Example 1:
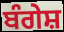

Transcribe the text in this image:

ਬੰਗੇਸ਼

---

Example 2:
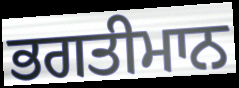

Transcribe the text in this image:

ਭਗਤੀਮਾਨ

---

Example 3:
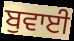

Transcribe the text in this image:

ਬੁਵਾਈ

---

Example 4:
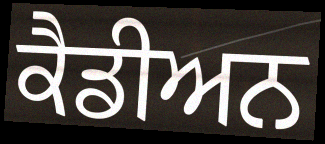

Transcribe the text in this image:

ਕੈਡੀਅਨ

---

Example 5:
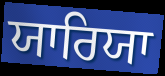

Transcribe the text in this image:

ਯਾਰਿਯਾ